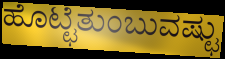
ಹೊಟ್ಟೆತುಂಬುವಷ್ಟು